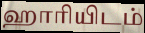
ஹாரியிடம்